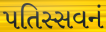
પતિસ્સવનં